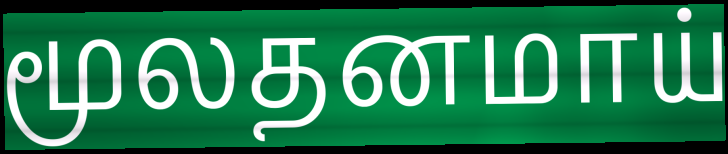
மூலதனமாய்